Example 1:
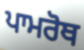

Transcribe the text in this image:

ਪਾਮਰੋਥ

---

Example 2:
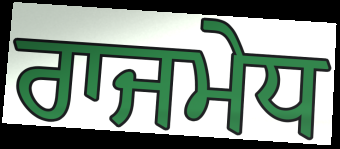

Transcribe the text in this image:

ਰਾਜਮੇਧ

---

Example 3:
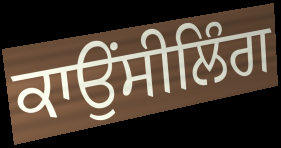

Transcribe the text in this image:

ਕਾਉਂਸੀਲਿੰਗ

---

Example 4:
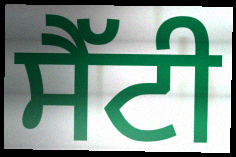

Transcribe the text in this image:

ਸੈੱਟੀ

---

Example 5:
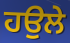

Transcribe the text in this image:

ਹਉਲੇ